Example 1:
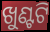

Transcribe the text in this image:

ଖୁଣ୍ଟଟି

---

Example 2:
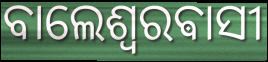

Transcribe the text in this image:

ବାଲେଶ୍ଵରଵାସୀ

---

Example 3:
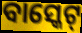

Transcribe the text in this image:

ବାସ୍କେଟ୍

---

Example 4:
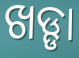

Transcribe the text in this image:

ଖଡ୍ଡା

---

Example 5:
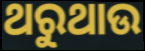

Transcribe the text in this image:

ଥରୁଥାଉ